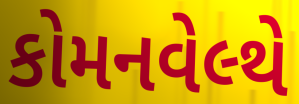
કોમનવેલ્થે